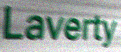
Laverty